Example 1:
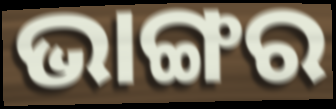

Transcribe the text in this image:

ଭାଙ୍ଗର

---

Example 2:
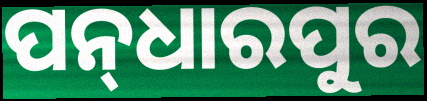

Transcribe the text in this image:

ପନ୍‌ଧାରପୁର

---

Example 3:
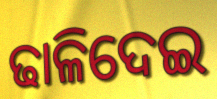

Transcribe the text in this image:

ଢାଳିଦେଇ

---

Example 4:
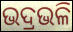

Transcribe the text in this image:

ଭଦ୍ରଭଳି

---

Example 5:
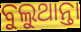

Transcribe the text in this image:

ବୁଲୁଥାନ୍ତା